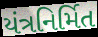
યંત્રનિર્મિત